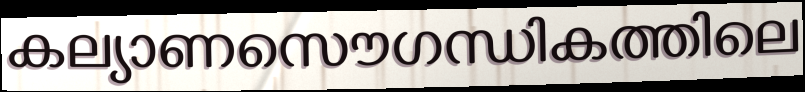
കല്യാണസൌഗന്ധികത്തിലെ